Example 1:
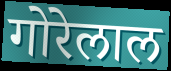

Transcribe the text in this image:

गोरेलाल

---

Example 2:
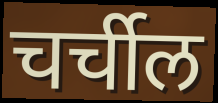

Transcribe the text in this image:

चर्चील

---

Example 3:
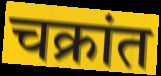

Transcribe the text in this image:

चक्रांत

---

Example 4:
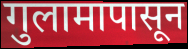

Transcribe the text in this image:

गुलामापासून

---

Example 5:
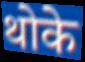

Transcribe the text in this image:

थोके